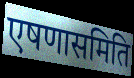
एषणासमिति